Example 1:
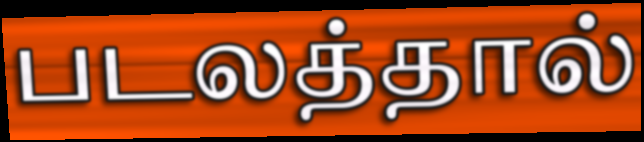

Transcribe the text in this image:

படலத்தால்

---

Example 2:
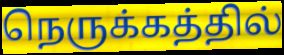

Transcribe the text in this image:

நெருக்கத்தில்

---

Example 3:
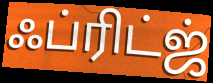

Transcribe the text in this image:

ஃப்ரிட்ஜ்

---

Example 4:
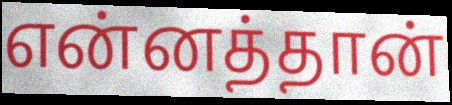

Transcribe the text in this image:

என்னத்தான்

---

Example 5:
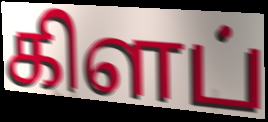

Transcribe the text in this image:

கிளப்